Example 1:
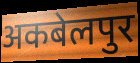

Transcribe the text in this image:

अकबेलपुर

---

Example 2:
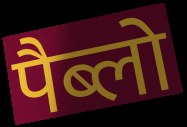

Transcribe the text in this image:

पैब्लो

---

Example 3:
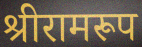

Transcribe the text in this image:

श्रीरामरूप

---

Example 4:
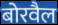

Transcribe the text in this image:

बोरवैल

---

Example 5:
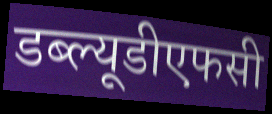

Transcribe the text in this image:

डब्ल्यूडीएफसी